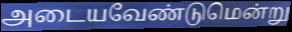
அடையவேண்டுமென்று